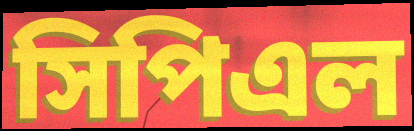
সিপিএল